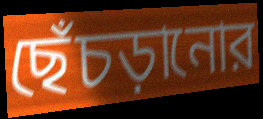
ছেঁচড়ানোর